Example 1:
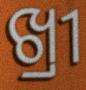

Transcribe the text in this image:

ଖ୍ରୀ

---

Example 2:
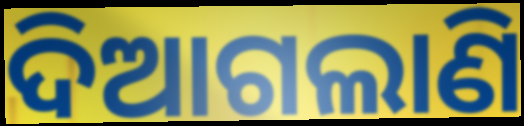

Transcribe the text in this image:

ଦିଆଗଲାଣି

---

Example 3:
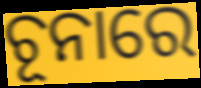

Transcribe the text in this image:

ଚୂନାରେ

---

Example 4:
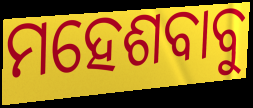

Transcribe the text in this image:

ମହେଶବାବୁ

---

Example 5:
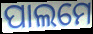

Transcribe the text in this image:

ପାଲମେ